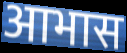
आभास